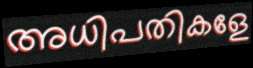
അധിപതികളേ